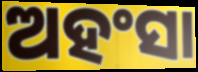
ଅହଂସା